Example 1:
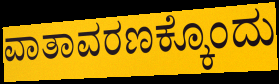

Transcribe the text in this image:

ವಾತಾವರಣಕ್ಕೊಂದು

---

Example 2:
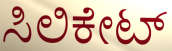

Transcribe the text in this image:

ಸಿಲಿಕೇಟ್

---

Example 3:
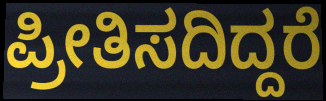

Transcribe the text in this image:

ಪ್ರೀತಿಸದಿದ್ದರೆ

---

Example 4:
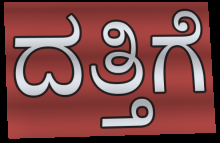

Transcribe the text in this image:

ದತ್ತಿಗೆ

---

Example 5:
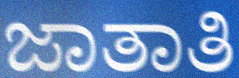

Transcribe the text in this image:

ಜಾತಾತಿ